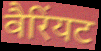
वैरिंयट